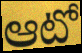
ఆటో